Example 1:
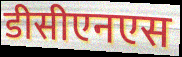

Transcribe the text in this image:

डीसीएनएस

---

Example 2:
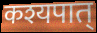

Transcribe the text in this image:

कश्यपात्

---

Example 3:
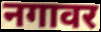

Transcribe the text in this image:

नगावर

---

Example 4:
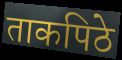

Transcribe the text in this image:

ताकपिठे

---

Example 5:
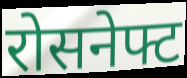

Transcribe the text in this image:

रोसनेफ्ट